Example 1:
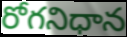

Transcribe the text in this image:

రోగనిధాన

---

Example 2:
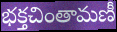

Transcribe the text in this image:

భక్తచింతామణీ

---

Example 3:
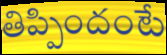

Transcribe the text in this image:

తిప్పిందంటే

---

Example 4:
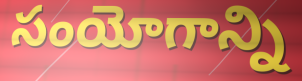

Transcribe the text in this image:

సంయోగాన్ని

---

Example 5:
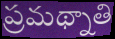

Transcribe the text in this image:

ప్రమథ్నాతి